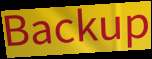
Backup